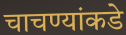
चाचण्यांकडे